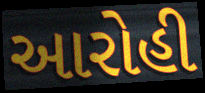
આરોહી